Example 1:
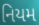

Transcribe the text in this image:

નિયમ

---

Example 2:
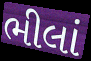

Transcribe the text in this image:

ભીલાં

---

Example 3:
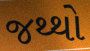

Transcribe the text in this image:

જથ્થો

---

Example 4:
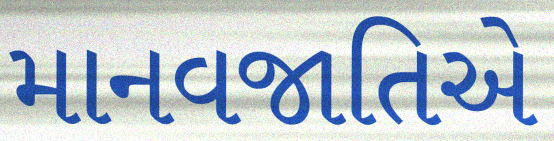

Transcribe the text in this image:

માનવજાતિએ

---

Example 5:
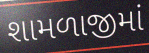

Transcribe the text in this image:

શામળાજીમાં